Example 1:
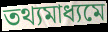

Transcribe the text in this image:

তথ্যমাধ্যমে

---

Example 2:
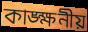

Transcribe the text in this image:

কাঙ্ক্ষনীয়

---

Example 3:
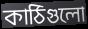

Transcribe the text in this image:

কাঠিগুলো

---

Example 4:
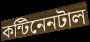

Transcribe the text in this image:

কন্টিনেনটাল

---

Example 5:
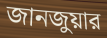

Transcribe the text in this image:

জানজুয়ার